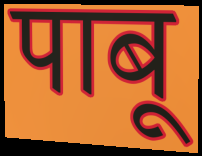
पाबू